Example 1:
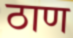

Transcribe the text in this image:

ठाण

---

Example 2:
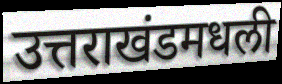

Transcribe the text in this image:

उत्तराखंडमधली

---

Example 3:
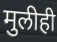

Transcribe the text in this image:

मुलीही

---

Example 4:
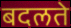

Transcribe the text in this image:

बदलते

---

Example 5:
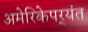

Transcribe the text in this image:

अमेरिकेपर्यंत